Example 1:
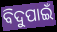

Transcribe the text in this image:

ବିଦୁପାଇଁ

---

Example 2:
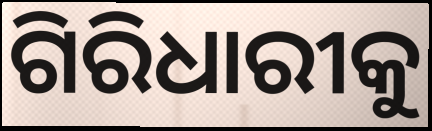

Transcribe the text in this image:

ଗିରିଧାରୀକୁ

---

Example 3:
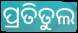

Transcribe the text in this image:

ପ୍ରତିତୁଲ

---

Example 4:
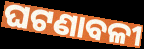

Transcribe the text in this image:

ଘଟଣାବଳୀ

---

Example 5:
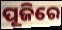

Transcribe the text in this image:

ପୂଜିରେ